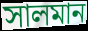
সালমান